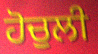
ਹੋਚੁਲੀ